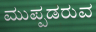
ಮುಪ್ಪಡರುವ